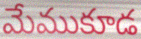
మేముకూడ